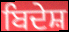
ਬਿਦੇਸ਼